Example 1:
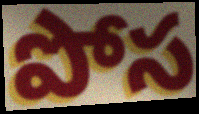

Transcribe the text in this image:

పోస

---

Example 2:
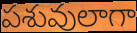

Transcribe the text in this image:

పశువులాగా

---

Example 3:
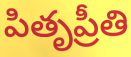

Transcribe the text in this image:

పితృప్రీతి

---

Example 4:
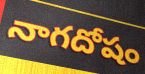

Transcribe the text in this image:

నాగదోషం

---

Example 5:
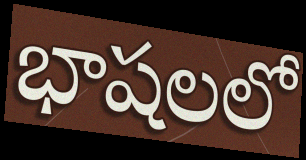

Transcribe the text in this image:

భాషలలో